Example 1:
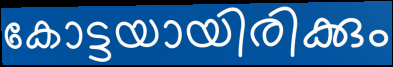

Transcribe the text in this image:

കോട്ടയായിരിക്കും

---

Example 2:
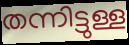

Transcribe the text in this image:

തന്നിട്ടുള്ള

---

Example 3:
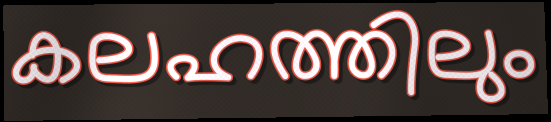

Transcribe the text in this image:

കലഹത്തിലും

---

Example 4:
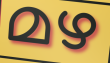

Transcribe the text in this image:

മഴ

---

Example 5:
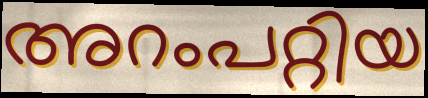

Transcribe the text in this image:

അറംപറ്റിയ